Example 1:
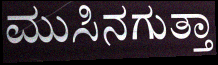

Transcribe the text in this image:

ಮುಸಿನಗುತ್ತಾ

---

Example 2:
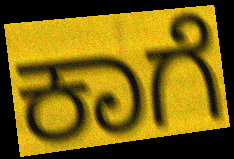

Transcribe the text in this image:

ಕಾಗೆ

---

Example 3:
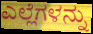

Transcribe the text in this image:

ಎಲ್ಲೆಗಳನ್ನು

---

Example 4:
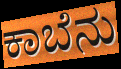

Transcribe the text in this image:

ಕಾಬೆನು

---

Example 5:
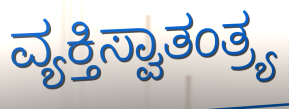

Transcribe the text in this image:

ವ್ಯಕ್ತಿಸ್ವಾತಂತ್ರ್ಯ